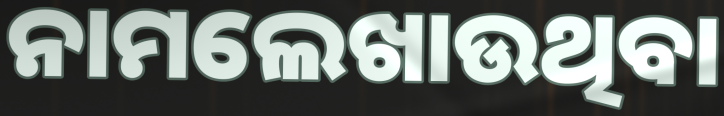
ନାମଲେଖାଉଥିବା